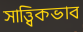
সাত্ত্বিকভাব